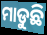
ମାଡୁଛି